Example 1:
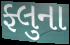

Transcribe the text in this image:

ફ્લુના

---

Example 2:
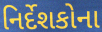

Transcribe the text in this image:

નિર્દેશકોના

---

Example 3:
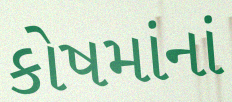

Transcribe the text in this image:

કોષમાંનાં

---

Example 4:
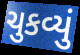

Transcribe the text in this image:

ચુકવ્યું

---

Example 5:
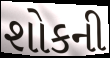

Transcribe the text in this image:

શોકની